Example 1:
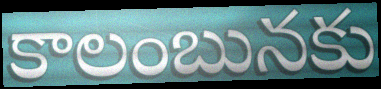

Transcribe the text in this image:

కాలంబునకు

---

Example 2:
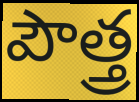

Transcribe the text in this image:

పౌత్త్ర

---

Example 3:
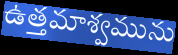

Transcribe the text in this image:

ఉత్తమాశ్వమును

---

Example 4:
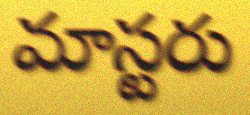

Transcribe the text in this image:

మాస్టరు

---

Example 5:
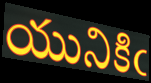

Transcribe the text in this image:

యునికిఁ